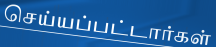
செய்யப்பட்டார்கள்